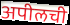
अपीलची